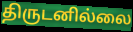
திருடனில்லை